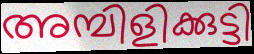
അമ്പിളിക്കുട്ടി